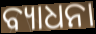
ବ୍ୟାଧନା